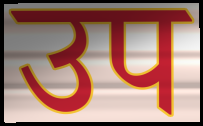
उप